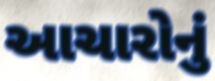
આચારોનું